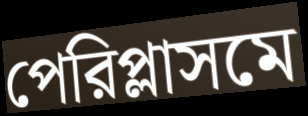
পেরিপ্লাসমে